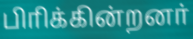
பிரிக்கின்றனர்